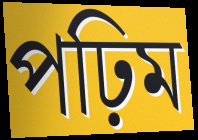
পঢ়িম